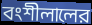
বংশীলালের